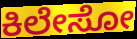
ಕಿಲೇಸೋ